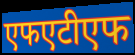
एफएटीएफ